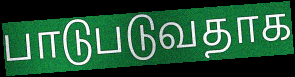
பாடுபடுவதாக